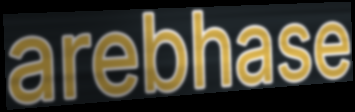
arebhase